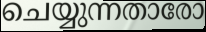
ചെയ്യുന്നതാരോ